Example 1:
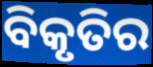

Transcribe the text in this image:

ବିକୃତିର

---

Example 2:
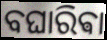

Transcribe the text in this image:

ବଘାରିଵା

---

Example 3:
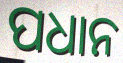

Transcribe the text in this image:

ପଧାନ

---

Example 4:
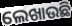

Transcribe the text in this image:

ଲେଖାଉଛି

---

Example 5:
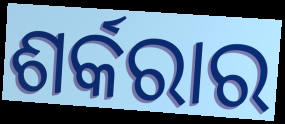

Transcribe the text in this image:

ଶର୍କରାର